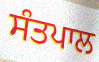
ਸੰਤਪਾਲ